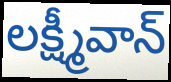
లక్ష్మీవాన్